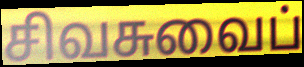
சிவசுவைப்